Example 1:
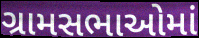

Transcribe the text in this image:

ગ્રામસભાઓમાં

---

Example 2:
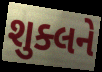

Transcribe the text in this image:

શુક્લને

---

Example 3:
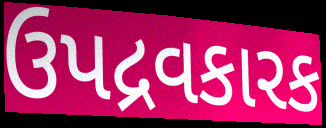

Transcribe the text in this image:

ઉપદ્રવકારક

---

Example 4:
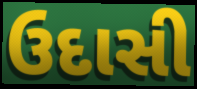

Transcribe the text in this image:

ઉદાસી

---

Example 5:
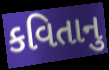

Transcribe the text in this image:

કવિતાનુ